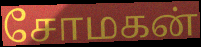
சோமகன்